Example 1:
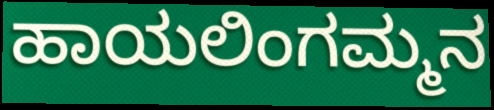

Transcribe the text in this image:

ಹಾಯಲಿಂಗಮ್ಮನ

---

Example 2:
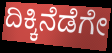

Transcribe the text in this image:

ದಿಕ್ಕಿನೆಡೆಗೇ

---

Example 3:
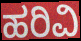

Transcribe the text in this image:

ಹರಿವಿ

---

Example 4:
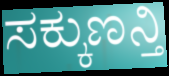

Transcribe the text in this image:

ಸಕ್ಕುಣನ್ತಿ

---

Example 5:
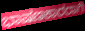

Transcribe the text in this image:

ಭಾಷಣಕಾರರಾಗಿ